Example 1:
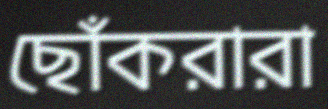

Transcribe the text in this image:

ছোঁকরারা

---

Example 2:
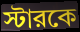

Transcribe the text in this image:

স্টারকে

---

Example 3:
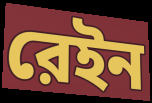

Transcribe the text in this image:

রেইন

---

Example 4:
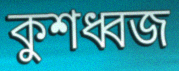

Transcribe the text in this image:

কুশধ্বজ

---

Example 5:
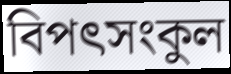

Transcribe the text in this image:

বিপৎসংকুল